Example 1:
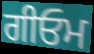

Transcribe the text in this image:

ਗੀਓਮ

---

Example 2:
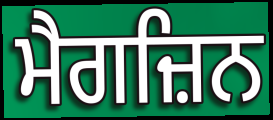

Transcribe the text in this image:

ਮੈਗਜ਼ਿਨ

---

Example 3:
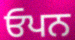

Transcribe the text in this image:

ਓਪਨ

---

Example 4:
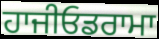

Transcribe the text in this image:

ਹਾਜੀਓਡਰਾਮਾ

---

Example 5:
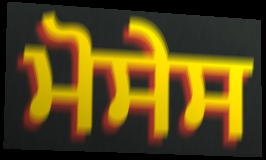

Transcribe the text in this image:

ਮੋਸੇਸ